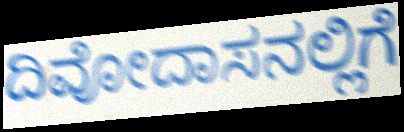
ದಿವೋದಾಸನಲ್ಲಿಗೆ